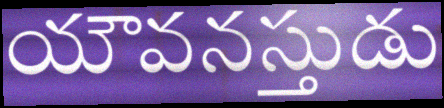
యౌవనస్తుడు